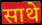
साथे